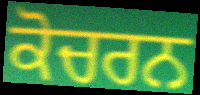
ਕੋਚਰਨ